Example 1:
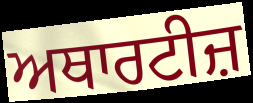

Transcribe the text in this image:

ਅਥਾਰਟੀਜ਼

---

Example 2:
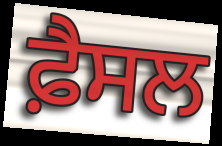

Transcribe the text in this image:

ਫ਼ੈਸਲ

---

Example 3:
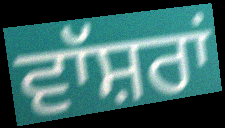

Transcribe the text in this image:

ਵਾੱਸ਼ਰਾਂ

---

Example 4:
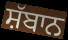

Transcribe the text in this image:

ਸ਼ੱਬਾਨ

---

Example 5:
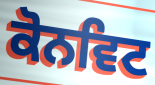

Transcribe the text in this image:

ਕੋਨਵਿਟ